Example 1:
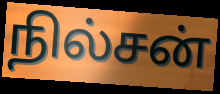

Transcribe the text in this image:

நில்சன்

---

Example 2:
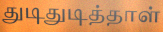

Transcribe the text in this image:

துடிதுடித்தாள்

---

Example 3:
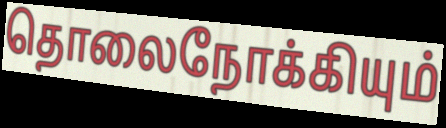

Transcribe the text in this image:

தொலைநோக்கியும்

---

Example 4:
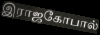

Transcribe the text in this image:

இராஜகோபால்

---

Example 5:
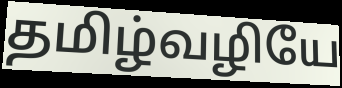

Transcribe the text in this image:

தமிழ்வழியே